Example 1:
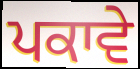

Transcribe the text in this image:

ਪਕਾਵੇ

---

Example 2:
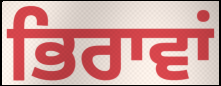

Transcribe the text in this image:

ਭਿਰਾਵਾਂ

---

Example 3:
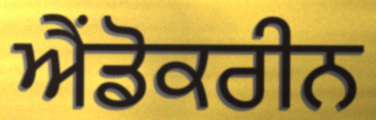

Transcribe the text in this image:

ਐਂਡੋਕਰੀਨ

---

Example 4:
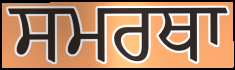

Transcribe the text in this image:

ਸਮਰਥਾ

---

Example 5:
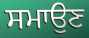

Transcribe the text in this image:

ਸਮਾਉਣ